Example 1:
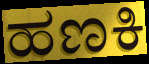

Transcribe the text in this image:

ಹಣಕಿ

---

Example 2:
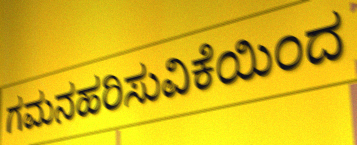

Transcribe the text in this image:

ಗಮನಹರಿಸುವಿಕೆಯಿಂದ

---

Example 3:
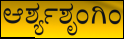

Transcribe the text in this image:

ಆರ್ಶ್ಯಶೃಂಗಿಂ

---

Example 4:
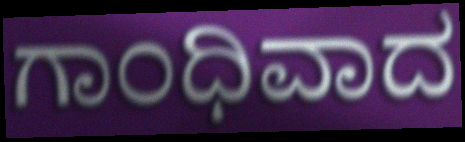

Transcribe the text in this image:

ಗಾಂಧಿವಾದ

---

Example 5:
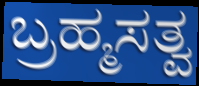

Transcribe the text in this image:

ಬ್ರಹ್ಮಸತ್ವ